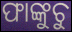
ଫାଙ୍କୁଚୁ